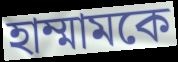
হাম্মামকে